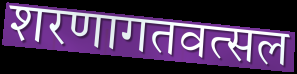
शरणागतवत्सल